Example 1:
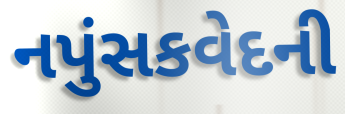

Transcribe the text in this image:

નપુંસકવેદની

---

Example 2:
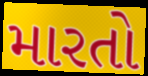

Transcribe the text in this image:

મારતો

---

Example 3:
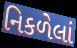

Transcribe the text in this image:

નિકળેલાં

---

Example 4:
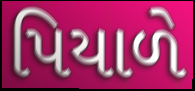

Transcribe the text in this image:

પિયાળે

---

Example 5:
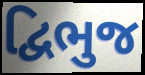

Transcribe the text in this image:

દ્વિભુજ